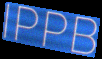
IPPB